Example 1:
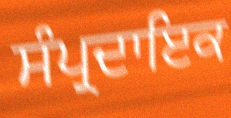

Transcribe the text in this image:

ਸੰਪ੍ਰਦਾਇਕ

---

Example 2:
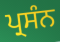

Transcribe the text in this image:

ਪ੍ਰਸੰਨ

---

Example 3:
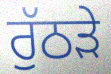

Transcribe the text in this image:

ਰੁੱਠੜੇ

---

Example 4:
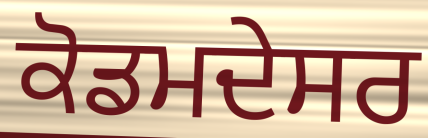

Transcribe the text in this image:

ਕੋਡਮਦੇਸਰ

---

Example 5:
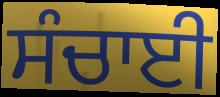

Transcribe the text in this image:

ਸੰਚਾਈ